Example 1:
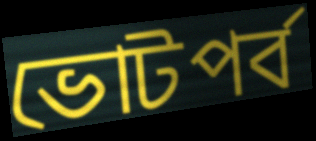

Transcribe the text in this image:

ভোটপর্ব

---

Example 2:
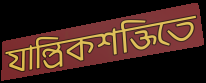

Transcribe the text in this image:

যান্ত্রিকশক্তিতে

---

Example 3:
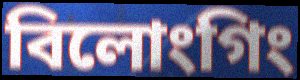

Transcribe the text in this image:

বিলোংগিং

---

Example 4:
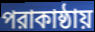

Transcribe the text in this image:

পরাকাষ্ঠায়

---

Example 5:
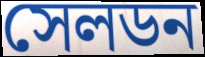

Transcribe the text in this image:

সেলডন